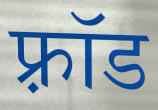
फ़्रॉड